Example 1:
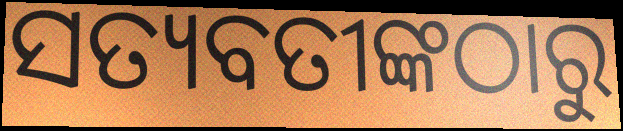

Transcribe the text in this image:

ସତ୍ୟବତୀଙ୍କଠାରୁ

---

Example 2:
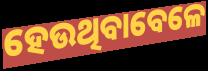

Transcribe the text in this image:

ହେଉଥିବାବେଳେ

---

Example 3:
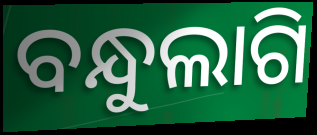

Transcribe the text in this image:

ବନ୍ଧୁଲାଗି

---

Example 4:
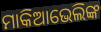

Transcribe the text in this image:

ମାକିଆଭେଲିଙ୍କ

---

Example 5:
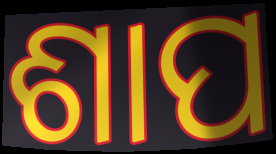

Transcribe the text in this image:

ଶାପ